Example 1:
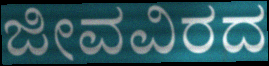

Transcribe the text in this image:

ಜೀವವಿರದ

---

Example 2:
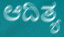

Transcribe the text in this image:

ಆದಿತ್ಯ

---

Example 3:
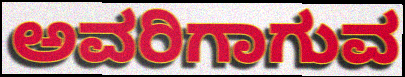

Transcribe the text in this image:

ಅವರಿಗಾಗುವ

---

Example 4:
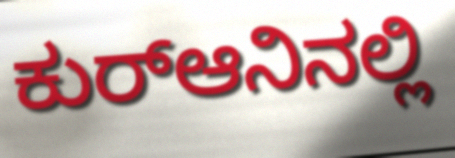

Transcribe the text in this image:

ಕುರ್‍ಆನಿನಲ್ಲಿ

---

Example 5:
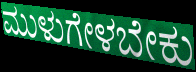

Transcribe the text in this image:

ಮುಳುಗೇಳಬೇಕು